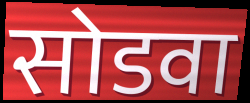
सोडवा